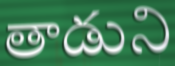
తాడుని